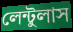
লেন্টুলাস